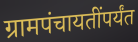
ग्रामपंचायतींपर्यंत